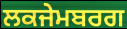
ਲਕਜੇਮਬਰਗ